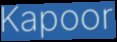
Kapoor